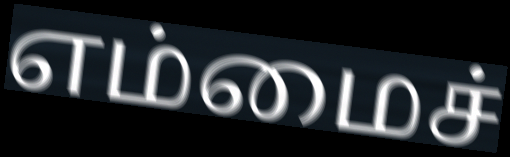
எம்மைச்